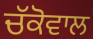
ਚੱਕੋਵਾਲ